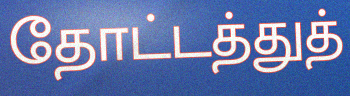
தோட்டத்துத்